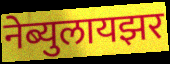
नेब्युलायझर